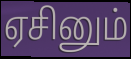
ஏசினும்